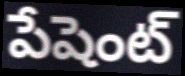
పేషెంట్